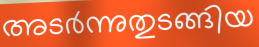
അടർന്നുതുടങ്ങിയ